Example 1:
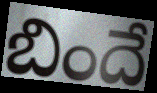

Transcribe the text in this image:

బిందే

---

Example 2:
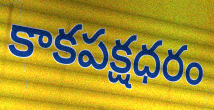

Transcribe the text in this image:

కాకపక్షధరం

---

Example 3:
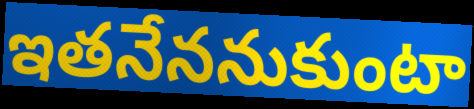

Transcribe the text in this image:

ఇతనేననుకుంటా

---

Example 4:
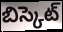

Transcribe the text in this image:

బిస్కెట్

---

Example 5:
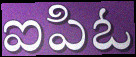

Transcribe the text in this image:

ఐపిఓ